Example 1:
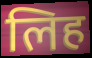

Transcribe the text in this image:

लिह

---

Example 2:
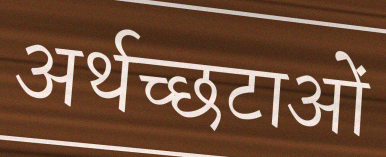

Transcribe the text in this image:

अर्थच्छटाओं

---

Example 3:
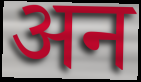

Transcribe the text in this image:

अन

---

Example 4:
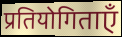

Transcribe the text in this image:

प्रतियोगिताएँ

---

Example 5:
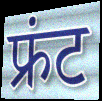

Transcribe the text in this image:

फ्रंट